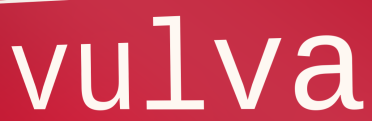
vulva